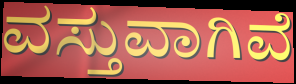
ವಸ್ತುವಾಗಿವೆ